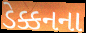
ડેક્કનના